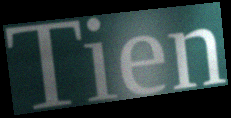
Tien